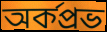
অর্কপ্রভ